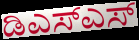
ಡಿಎಸ್ಎಸ್